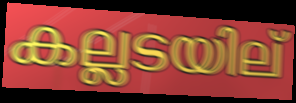
കല്ലടയില്